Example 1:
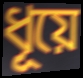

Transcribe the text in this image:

ধূয়ে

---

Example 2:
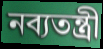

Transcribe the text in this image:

নব্যতন্ত্রী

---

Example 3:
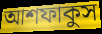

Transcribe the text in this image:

আশফাকুস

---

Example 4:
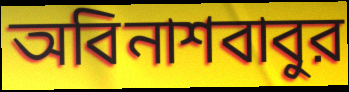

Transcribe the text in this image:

অবিনাশবাবুর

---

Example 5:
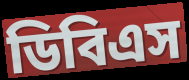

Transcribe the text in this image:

ডিবিএস